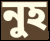
নুহ